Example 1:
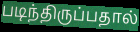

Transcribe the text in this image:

படிந்திருப்பதால்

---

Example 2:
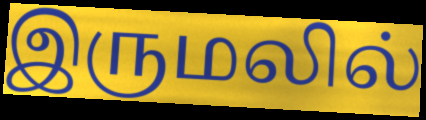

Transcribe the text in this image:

இருமலில்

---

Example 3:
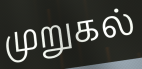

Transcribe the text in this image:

முறுகல்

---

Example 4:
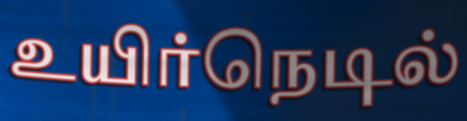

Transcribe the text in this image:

உயிர்நெடில்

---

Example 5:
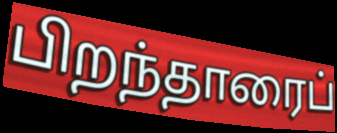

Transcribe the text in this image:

பிறந்தாரைப்